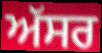
ਅੱਸਰ